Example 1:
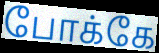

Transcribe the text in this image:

போக்கே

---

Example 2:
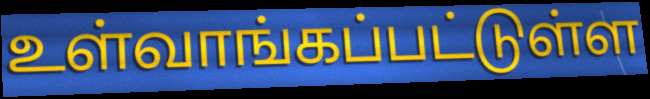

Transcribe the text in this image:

உள்வாங்கப்பட்டுள்ள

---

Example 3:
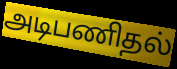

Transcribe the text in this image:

அடிபணிதல்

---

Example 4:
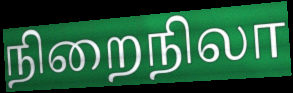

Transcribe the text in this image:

நிறைநிலா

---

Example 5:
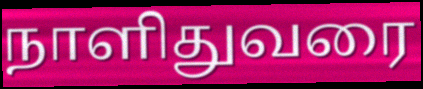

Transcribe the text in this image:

நாளிதுவரை